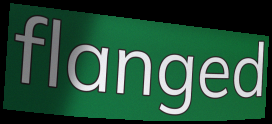
flanged